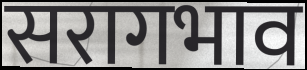
सरागभाव